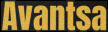
Avantsa